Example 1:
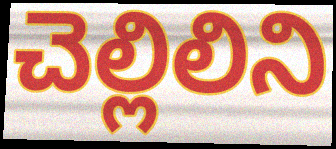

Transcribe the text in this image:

చెల్లిలిని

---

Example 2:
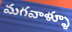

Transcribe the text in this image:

మగవాళ్ళూ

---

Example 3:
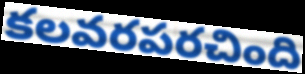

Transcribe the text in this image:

కలవరపరచింది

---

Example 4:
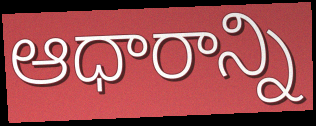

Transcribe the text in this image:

ఆధారాన్ని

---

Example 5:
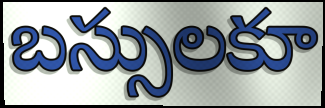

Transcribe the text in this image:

బస్సులకూ